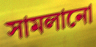
সামলানো